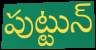
పుట్టున్